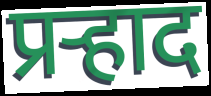
प्रर्‍हाद